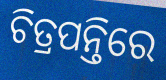
ଚିତ୍ରପନ୍ତିରେ